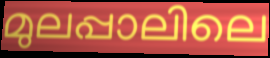
മുലപ്പാലിലെ